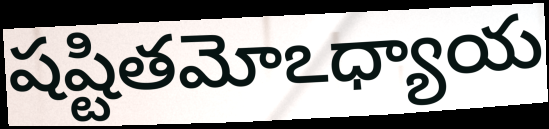
షష్టితమోఽధ్యాయ